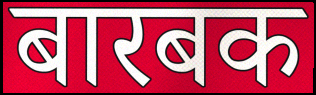
बारबक